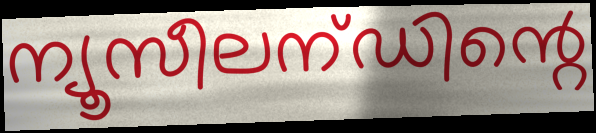
ന്യൂസീലന്ഡിന്റെ